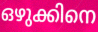
ഒഴുക്കിനെ